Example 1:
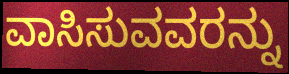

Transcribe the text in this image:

ವಾಸಿಸುವವರನ್ನು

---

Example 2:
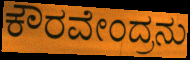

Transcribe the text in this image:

ಕೌರವೇಂದ್ರನು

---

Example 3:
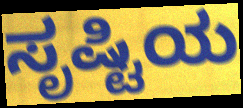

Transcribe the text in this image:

ಸೃಷ್ಟಿಯ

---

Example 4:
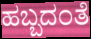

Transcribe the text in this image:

ಹಬ್ಬದಂತೆ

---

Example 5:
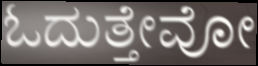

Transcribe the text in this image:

ಓದುತ್ತೇವೋ